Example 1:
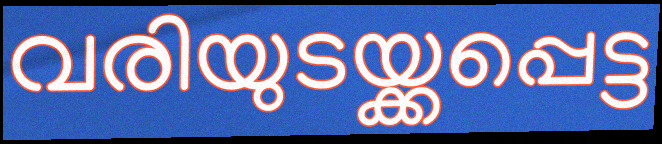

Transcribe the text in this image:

വരിയുടയ്ക്കപ്പെട്ട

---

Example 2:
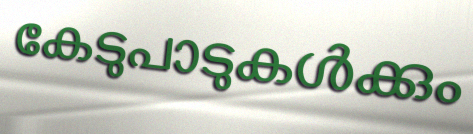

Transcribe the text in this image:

കേടുപാടുകൾക്കും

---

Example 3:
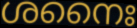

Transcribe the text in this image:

ശനൈഃ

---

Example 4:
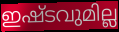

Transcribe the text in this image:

ഇഷ്ടവുമില്ല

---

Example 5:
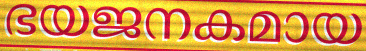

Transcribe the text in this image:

ഭയജനകമായ